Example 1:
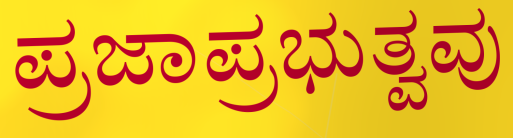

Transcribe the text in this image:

ಪ್ರಜಾಪ್ರಭುತ್ವವು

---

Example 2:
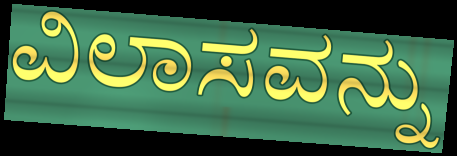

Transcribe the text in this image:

ವಿಲಾಸವನ್ನು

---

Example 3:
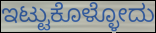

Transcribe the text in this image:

ಇಟ್ಟುಕೊಳ್ಳೋದು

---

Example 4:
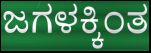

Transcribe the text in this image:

ಜಗಳಕ್ಕಿಂತ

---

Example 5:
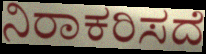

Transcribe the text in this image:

ನಿರಾಕರಿಸದೆ